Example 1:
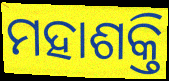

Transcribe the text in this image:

ମହାଶକ୍ତି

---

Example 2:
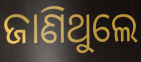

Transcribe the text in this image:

ଜାଣିଥୁଲେ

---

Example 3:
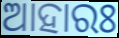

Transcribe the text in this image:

ଆହାରଃ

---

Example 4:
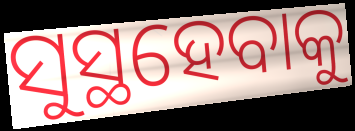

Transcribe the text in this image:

ସୁସ୍ଥହେବାକୁ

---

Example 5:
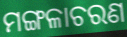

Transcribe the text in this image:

ମଙ୍ଗଳାଚରଣ